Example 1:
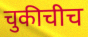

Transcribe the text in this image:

चुकीचीच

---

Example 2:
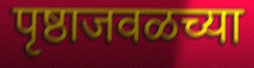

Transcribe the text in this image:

पृष्ठाजवळच्या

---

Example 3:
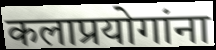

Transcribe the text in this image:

कलाप्रयोगांना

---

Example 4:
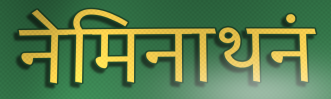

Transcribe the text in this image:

नेमिनाथनं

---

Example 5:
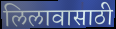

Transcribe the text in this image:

लिलावासाठी